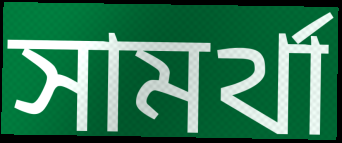
সামর্থা